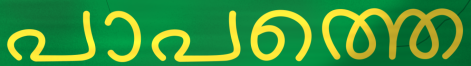
പാപത്തെ